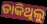
ଡାକିଥିଲୁ